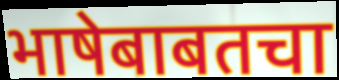
भाषेबाबतचा